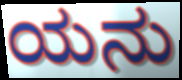
ಯನು